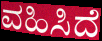
ವಹಿಸಿದೆ